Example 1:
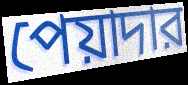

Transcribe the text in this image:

পেয়াদার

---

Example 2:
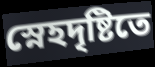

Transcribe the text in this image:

স্নেহদৃষ্টিতে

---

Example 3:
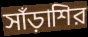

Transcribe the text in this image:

সাঁড়াশির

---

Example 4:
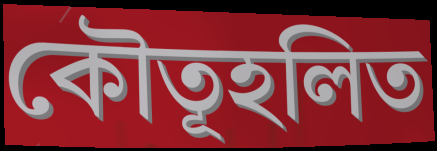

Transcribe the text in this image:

কৌতূহলিত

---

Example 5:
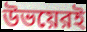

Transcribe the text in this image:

উভয়েরই